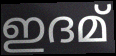
ഇദമ്